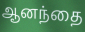
ஆனந்தை